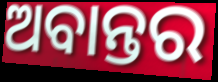
ଅବାନ୍ତର